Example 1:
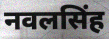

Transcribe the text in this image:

नवलसिंह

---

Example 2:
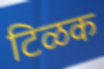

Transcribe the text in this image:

टिळक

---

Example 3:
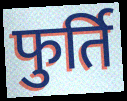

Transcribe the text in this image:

फुर्ति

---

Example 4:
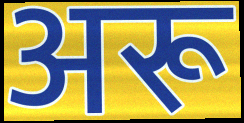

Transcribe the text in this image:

अरू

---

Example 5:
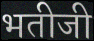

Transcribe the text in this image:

भतीजी